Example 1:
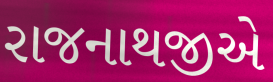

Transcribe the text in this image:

રાજનાથજીએ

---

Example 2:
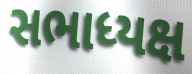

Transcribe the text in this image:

સભાધ્યક્ષ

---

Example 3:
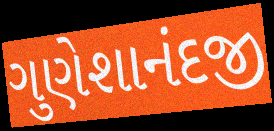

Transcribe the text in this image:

ગુણેશાનંદજી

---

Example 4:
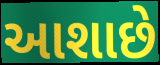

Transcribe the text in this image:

આશાછે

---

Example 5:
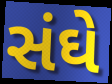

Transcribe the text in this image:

સંઘે